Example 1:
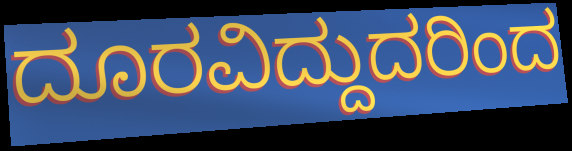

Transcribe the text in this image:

ದೂರವಿದ್ದುದರಿಂದ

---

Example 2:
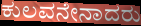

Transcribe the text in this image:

ಕುಲವನೇನಾದರು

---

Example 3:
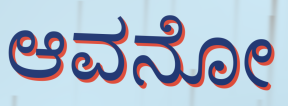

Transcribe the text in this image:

ಆವನೋ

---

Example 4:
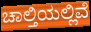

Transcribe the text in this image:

ಚಾಲ್ತಿಯಲ್ಲಿವೆ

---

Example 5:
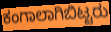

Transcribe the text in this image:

ಕಂಗಾಲಾಗಿಬಿಟ್ಟರು